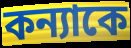
কন্যাকে